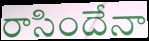
రాసిందేనా